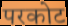
परकोट